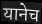
यानेच